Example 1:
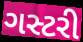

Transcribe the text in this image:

ગસ્ટરી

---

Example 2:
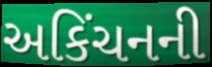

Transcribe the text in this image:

અકિંચનની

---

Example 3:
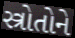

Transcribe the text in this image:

સ્ત્રોતોને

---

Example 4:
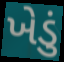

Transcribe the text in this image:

ખેડું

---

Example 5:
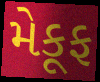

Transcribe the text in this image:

મેકૂફ